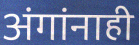
अंगांनाही